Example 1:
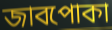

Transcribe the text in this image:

জাবপোকা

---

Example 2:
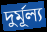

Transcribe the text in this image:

দুর্মূল্য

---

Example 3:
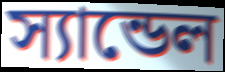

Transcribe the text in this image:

স্যান্ডেল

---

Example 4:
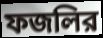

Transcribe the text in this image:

ফজলির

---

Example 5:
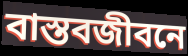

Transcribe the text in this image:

বাস্তবজীবনে